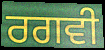
ਰਗਵੀ